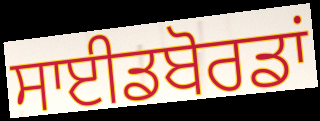
ਸਾਈਡਬੋਰਡਾਂ